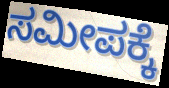
ಸಮೀಪಕ್ಕೆ